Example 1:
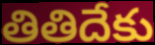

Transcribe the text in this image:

తితిదేకు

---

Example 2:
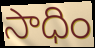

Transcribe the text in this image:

సాధిం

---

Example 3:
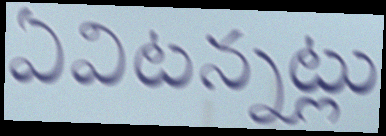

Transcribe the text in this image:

ఏవిటన్నట్లు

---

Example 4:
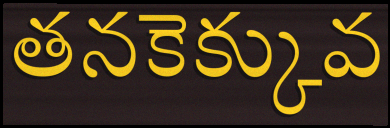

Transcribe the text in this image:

తనకెక్కువ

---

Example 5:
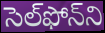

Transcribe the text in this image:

సెల్‌ఫోన్‌ని